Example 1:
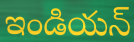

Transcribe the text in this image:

ఇండియన్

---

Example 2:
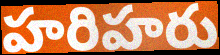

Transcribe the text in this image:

హరిహరు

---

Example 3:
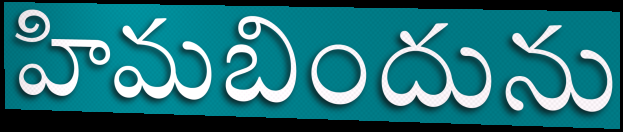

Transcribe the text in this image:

హిమబిందును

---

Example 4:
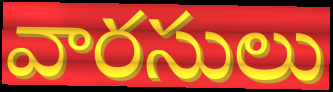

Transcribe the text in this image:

వారసులు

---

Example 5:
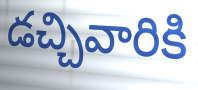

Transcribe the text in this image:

డచ్చివారికి